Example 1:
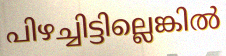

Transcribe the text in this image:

പിഴച്ചിട്ടില്ലെങ്കിൽ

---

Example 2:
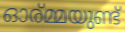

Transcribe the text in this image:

ഓര്മ്മയുണ്ട്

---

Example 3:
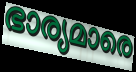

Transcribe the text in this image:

ഭാര്യമാരെ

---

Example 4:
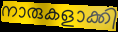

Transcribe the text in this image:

നാരുകളാക്കി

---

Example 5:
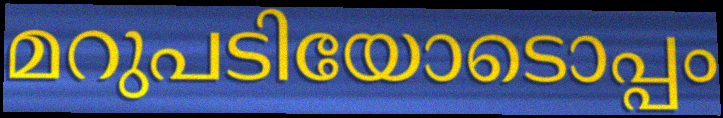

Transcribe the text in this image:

മറുപടിയോടൊപ്പം